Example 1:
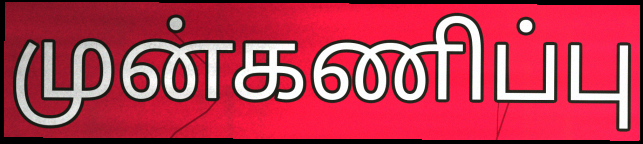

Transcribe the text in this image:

முன்கணிப்பு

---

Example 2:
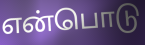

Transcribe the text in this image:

என்பொடு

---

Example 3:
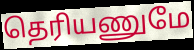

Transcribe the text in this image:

தெரியணுமே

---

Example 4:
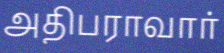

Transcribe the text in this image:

அதிபராவார்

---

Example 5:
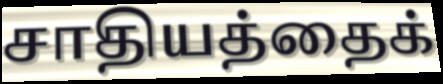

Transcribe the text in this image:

சாதியத்தைக்